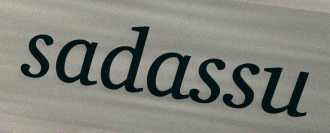
sadassu